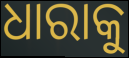
ଧାରାକୁ